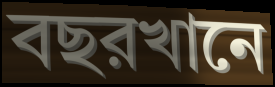
বছরখানে